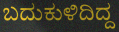
ಬದುಕುಳಿದಿದ್ದ